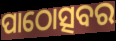
ପାଠୋତ୍ସବର